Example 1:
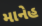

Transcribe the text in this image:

માનેહ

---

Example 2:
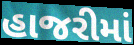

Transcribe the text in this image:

હાજરીમાં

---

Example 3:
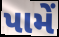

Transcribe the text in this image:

પામેં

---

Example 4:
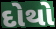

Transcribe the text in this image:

દોથો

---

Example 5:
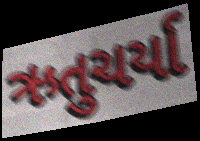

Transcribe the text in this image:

ઋતુચર્યા